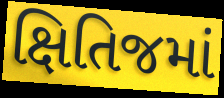
ક્ષિતિજમાં